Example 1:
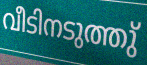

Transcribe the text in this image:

വീടിനടുത്തു്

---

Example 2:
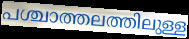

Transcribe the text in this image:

പശ്ചാത്തലത്തിലുള്ള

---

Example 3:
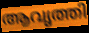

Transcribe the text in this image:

ആവൃത്തി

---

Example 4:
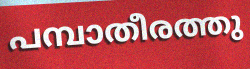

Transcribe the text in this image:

പമ്പാതീരത്തു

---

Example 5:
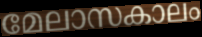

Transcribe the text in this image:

മേലാസകാലം